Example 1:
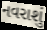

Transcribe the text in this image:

નવરાશું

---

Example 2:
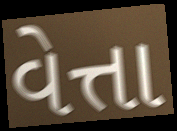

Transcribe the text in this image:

વેત્તા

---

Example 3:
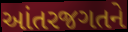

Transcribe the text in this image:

આંતરજગતને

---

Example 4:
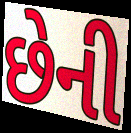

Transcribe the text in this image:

છેની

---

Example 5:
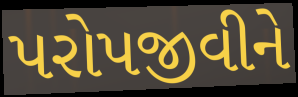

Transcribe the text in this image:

પરોપજીવીને